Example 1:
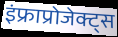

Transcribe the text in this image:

इंफ्राप्रोजेक्ट्स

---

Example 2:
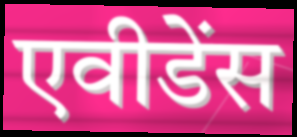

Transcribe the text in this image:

एवीडेंस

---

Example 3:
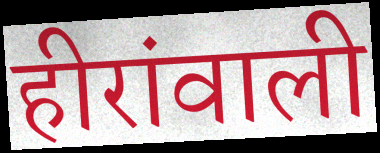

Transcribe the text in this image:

हीरांवाली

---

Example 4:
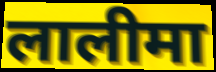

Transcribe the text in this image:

लालीमा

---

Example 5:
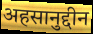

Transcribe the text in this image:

अहसानुद्दीन